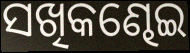
ସଖିକଣ୍ଢେଇ